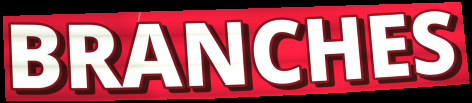
BRANCHES